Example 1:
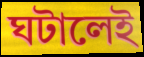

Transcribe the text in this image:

ঘটালেই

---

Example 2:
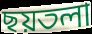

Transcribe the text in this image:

ছয়তলা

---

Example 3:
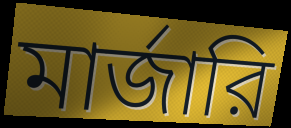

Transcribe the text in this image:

মার্জারি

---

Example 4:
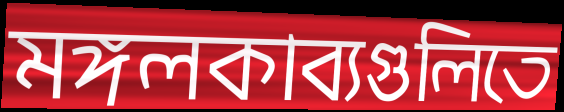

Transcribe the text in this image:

মঙ্গলকাব্যগুলিতে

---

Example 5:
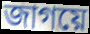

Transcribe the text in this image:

জাগয়ে